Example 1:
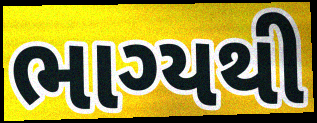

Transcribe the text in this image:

ભાગ્યથી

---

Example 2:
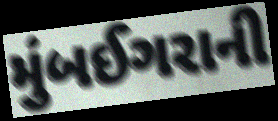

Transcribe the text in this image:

મુંબઈગરાની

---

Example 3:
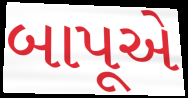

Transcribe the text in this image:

બાપૂએ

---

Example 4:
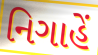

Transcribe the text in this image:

નિગાહેં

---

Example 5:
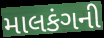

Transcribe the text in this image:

માલકંગની